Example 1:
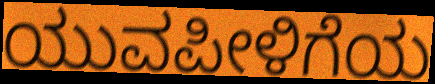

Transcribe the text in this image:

ಯುವಪೀಳಿಗೆಯ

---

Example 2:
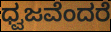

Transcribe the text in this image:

ಧ್ವಜವೆಂದರೆ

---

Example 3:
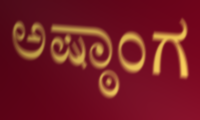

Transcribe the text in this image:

ಅಷ್ಠಾಂಗ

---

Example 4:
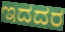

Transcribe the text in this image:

ಇದದರ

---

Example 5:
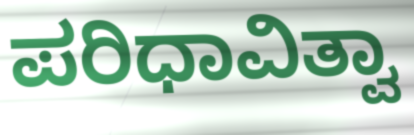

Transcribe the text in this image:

ಪರಿಧಾವಿತ್ವಾ